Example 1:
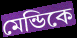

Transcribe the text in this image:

মেন্ডিকে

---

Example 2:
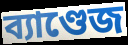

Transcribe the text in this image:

ব্যাণ্ডেজ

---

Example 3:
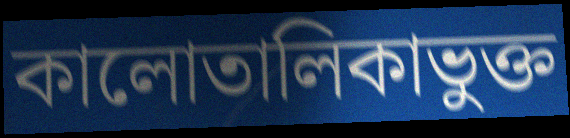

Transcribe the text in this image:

কালোতালিকাভুক্ত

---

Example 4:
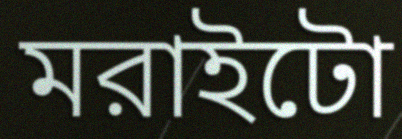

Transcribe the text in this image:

মরাইটো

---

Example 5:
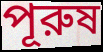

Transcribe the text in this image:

পূরুষ